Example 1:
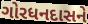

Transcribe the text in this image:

ગોરધનદાસને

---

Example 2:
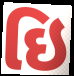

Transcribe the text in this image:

ઇિ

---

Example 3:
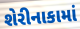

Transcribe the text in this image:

શેરીનાકામાં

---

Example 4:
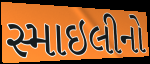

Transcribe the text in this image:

સ્માઇલીનો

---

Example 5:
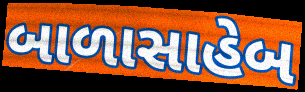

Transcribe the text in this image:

બાળાસાહેબ